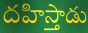
దహిస్తాడు